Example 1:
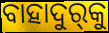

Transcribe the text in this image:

ବାହାଦୁର୍‌କୁ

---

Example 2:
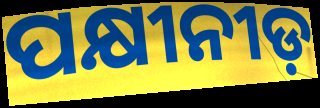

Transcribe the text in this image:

ପକ୍ଷୀନୀଡ଼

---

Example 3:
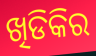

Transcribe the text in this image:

ଖିଡିକିର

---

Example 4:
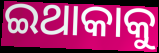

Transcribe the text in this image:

ଇଥାକାକୁ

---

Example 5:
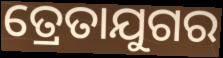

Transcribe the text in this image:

ତ୍ରେତାଯୁଗର